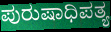
ಪುರುಷಾಧಿಪತ್ಯ